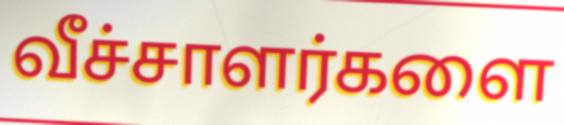
வீச்சாளர்களை